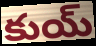
కుయ్